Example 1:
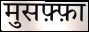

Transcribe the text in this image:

मुसफ़्फ़ा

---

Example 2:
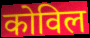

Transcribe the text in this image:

कोविल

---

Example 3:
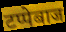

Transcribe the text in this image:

टप्पेबाज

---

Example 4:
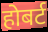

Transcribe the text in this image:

होबर्ट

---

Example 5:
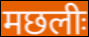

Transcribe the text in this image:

मछलीः